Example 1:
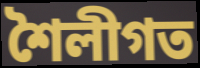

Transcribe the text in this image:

শৈলীগত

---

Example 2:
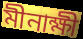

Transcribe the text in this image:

মীনাক্ষী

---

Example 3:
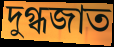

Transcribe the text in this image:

দুগ্ধজাত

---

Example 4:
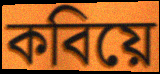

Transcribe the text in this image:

কবিয়ে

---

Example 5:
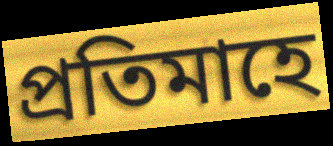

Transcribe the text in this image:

প্ৰতিমাহে